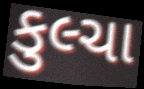
કુલ્ચા